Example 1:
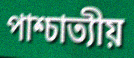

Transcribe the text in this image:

পাশ্চাত্যীয়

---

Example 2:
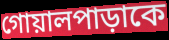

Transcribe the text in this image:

গোয়ালপাড়াকে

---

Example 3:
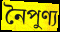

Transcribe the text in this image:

নৈপুণ্য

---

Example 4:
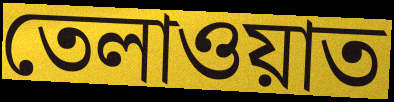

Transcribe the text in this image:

তেলাওয়াত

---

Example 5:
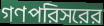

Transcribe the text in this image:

গণপরিসরের